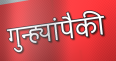
गुन्ह्यांपैकी